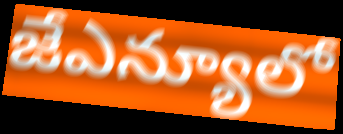
జేఎన్యూలో